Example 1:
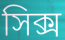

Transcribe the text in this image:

সিক্স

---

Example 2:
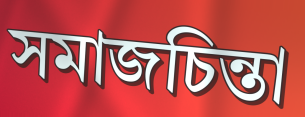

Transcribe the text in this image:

সমাজচিন্তা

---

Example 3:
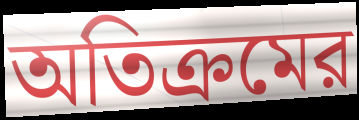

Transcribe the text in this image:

অতিক্রমের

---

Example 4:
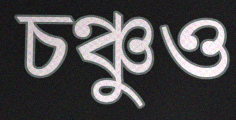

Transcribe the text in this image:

চঞ্চুও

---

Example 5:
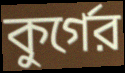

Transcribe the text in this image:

কুর্গের